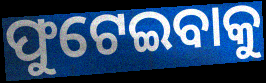
ଫୁଟେଇବାକୁ